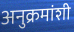
अनुक्रमांशी